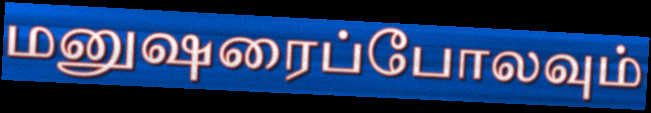
மனுஷரைப்போலவும்